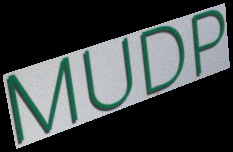
MUDP